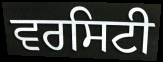
ਵਰਸਿਟੀ